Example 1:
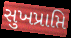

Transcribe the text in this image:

સુખપ્રાપ્તિ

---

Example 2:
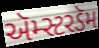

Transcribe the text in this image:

ઍમ્સ્ટરડૅમ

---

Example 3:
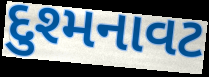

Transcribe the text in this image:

દુશ્મનાવટ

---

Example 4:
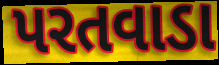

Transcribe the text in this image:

પરતવાડા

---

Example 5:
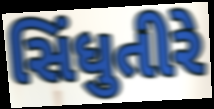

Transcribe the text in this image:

સિંધુતીરે